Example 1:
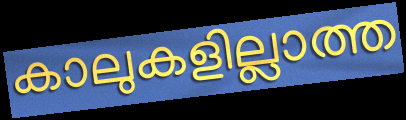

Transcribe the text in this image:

കാലുകളില്ലാത്ത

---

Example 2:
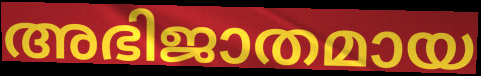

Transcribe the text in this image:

അഭിജാതമായ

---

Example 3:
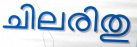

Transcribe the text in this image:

ചിലരിതു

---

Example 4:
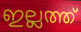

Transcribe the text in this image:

ഇല്ലത്ത്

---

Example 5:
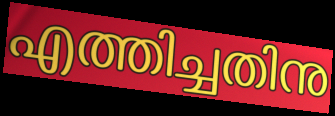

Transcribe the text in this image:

എത്തിച്ചതിനു